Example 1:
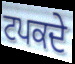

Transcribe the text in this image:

ਟਪਕਦੇ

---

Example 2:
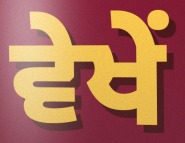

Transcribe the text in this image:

ਵੇਖੇਂ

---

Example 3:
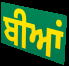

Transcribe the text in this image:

ਬੀਆਂ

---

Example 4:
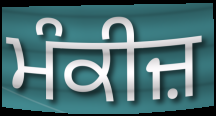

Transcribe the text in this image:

ਮੰਕੀਜ਼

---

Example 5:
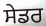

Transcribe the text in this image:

ਸੇਡਰ